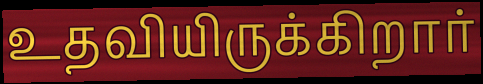
உதவியிருக்கிறார்